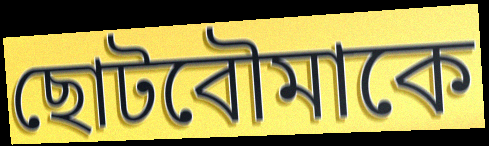
ছোটবৌমাকে